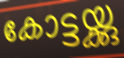
കോട്ടയ്ക്കു